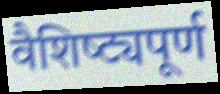
वैशिष्‍ट्यपूर्ण